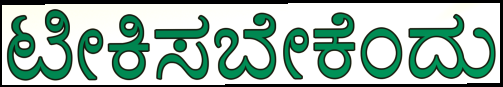
ಟೀಕಿಸಬೇಕೆಂದು